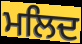
ਮਲਿਦ